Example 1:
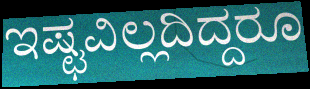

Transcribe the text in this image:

ಇಷ್ಟವಿಲ್ಲದಿದ್ದರೂ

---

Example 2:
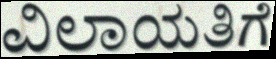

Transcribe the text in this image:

ವಿಲಾಯತಿಗೆ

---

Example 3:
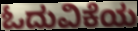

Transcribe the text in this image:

ಓದುವಿಕೆಯ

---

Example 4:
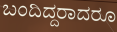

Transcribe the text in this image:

ಬಂದಿದ್ದರಾದರೂ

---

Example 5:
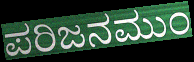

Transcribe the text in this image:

ಪರಿಜನಮುಂ